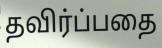
தவிர்ப்பதை